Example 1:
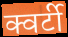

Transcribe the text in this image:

क्वर्टी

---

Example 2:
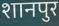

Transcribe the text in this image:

शानपुर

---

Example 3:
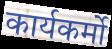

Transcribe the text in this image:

कार्यकर्मो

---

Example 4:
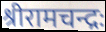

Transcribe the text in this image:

श्रीरामचन्द्रः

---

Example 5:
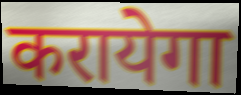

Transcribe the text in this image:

करायेगा